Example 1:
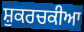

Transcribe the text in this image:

ਸ਼ੁਕਰਚਕੀਆ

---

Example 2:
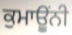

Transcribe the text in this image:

ਕੁਮਾਊਂਨੀ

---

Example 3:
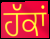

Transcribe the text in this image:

ਹੱਕਾਂ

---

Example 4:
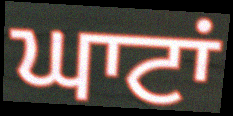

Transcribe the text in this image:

ਘਾਟਾਂ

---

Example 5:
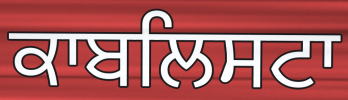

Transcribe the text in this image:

ਕਾਬਲਿਸਟਾ